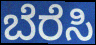
ಬೆರೆಸಿ